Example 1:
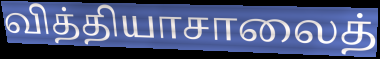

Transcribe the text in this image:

வித்தியாசாலைத்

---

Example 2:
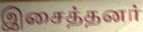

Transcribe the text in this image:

இசைத்தனர்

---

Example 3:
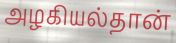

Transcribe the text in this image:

அழகியல்தான்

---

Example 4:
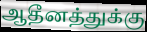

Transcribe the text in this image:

ஆதீனத்துக்கு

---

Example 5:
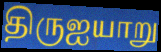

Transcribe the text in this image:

திருஐயாறு